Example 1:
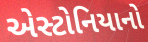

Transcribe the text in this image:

એસ્ટોનિયાનો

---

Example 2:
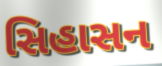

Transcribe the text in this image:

સિહાસન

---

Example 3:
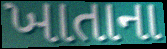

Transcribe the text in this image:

ખાતાના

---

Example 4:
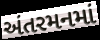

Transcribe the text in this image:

અંતરમનમાં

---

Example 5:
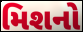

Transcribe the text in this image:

મિશનો